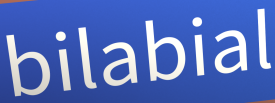
bilabial